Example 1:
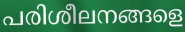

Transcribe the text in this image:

പരിശീലനങ്ങളെ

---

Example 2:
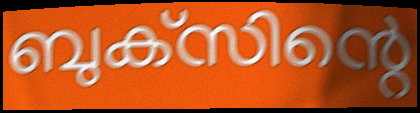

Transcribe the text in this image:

ബുക്‌സിന്റെ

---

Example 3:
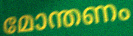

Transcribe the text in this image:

മോന്തണം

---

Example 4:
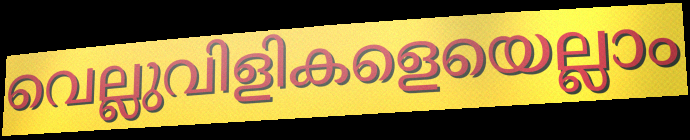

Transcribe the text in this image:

വെല്ലുവിളികളെയെല്ലാം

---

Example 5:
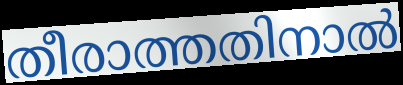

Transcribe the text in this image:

തീരാത്തതിനാൽ